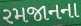
રમજાનના